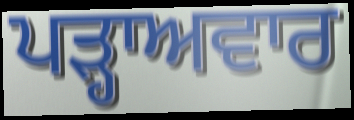
ਪੜ੍ਹਾਅਵਾਰ